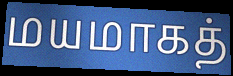
மயமாகத்